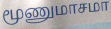
மூணுமாசமா